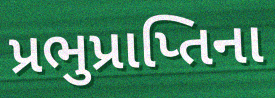
પ્રભુપ્રાપ્તિના